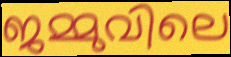
ജമ്മുവിലെ